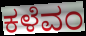
ಕಳೆವಂ